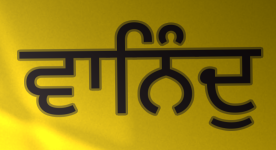
ਵਾਨਿੰਦੁ